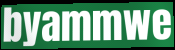
byammwe